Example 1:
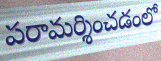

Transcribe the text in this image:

పరామర్శించడంలో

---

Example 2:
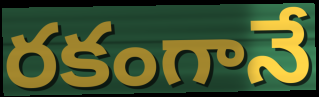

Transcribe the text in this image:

రకంగానే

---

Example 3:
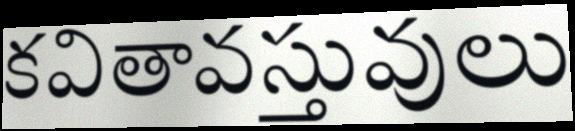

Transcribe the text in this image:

కవితావస్తువులు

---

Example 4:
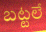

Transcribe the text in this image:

బట్టలే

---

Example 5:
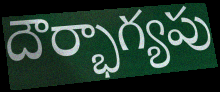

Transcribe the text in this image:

దౌర్భాగ్యపు